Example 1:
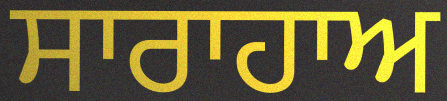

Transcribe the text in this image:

ਸਾਰਾਹਾਅ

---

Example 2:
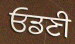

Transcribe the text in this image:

ਓਡਣੀ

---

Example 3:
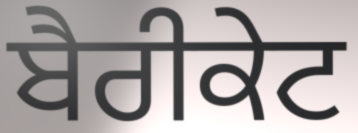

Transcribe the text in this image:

ਬੈਰੀਕੇਟ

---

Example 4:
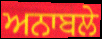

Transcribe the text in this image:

ਅਨਾਬਲੇ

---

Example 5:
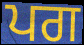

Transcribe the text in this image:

ਪਗ